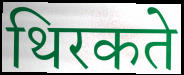
थिरकते